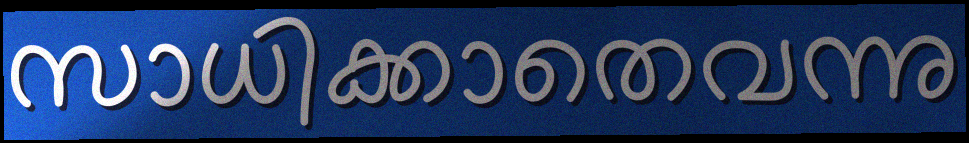
സാധിക്കാതെവന്നു